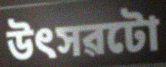
উৎসৱটো